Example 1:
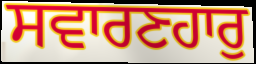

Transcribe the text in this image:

ਸਵਾਰਣਹਾਰੁ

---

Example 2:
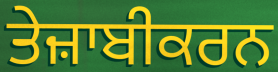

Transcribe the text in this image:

ਤੇਜ਼ਾਬੀਕਰਨ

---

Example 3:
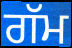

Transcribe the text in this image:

ਗੱਮ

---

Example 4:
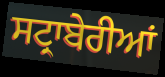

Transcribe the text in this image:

ਸਟ੍ਰਾਬੇਰੀਆਂ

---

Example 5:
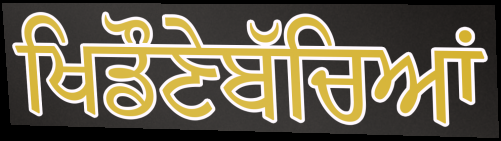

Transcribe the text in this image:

ਖਿਡੌਣੇਬੱਚਿਆਂ